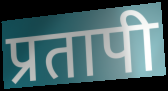
प्रतापी